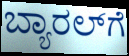
ಬ್ಯಾರಲ್‌ಗೆ